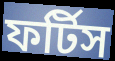
ফর্টিস